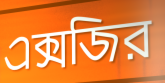
এক্সজির